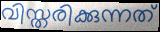
വിസ്തരിക്കുന്നത്